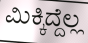
ಮಿಕ್ಕಿದ್ದೆಲ್ಲ